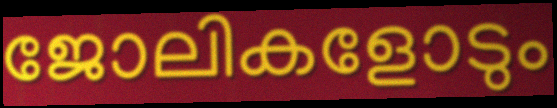
ജോലികളോടും